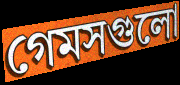
গেমসগুলো